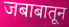
जबाबातून